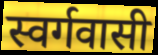
स्वर्गवासी